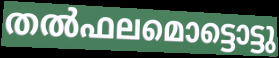
തൽഫലമൊട്ടൊട്ടു